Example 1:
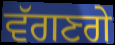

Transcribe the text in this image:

ਵੱਗਣਗੇ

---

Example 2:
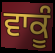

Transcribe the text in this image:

ਵਾਕੂੰ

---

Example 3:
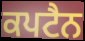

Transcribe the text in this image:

ਕਪਟੈਨ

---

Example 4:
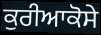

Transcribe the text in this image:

ਕੁਰੀਆਕੋਸੇ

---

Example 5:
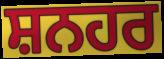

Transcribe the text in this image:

ਸ਼ਨਹਰ